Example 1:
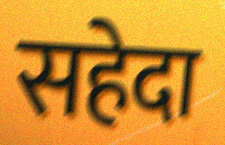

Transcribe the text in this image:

सहेदा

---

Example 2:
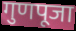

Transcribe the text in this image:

गुणपूजा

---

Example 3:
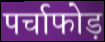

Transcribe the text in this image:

पर्चाफोड़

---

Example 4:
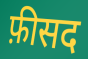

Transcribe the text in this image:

फ़ीसद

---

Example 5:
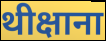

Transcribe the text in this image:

थीक्षाना